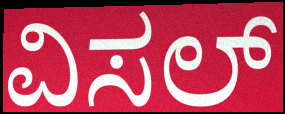
ವಿಸಲ್